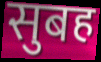
सुबह